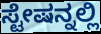
ಸ್ಟೇಷನ್ನಲ್ಲಿ